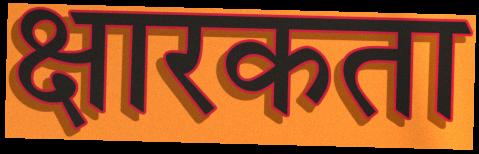
क्षारकता